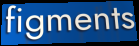
figments